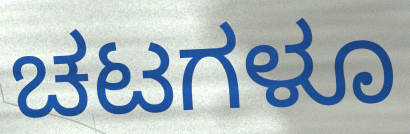
ಚಟಗಳೂ